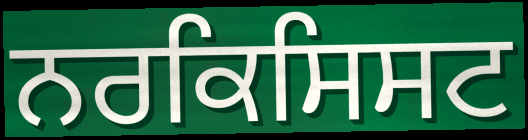
ਨਰਕਿਸਿਸਟ